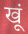
खूं